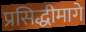
प्रसिद्धीमागे